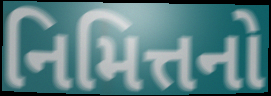
નિમિત્તનો